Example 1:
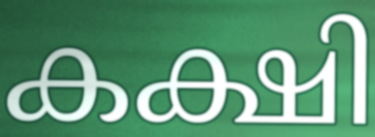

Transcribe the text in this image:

കക്ഷി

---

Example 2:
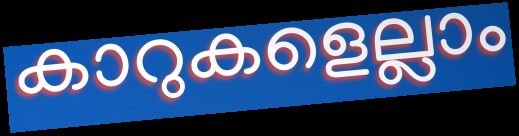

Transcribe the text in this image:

കാറുകളെല്ലാം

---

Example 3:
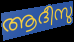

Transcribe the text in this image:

ആദീസു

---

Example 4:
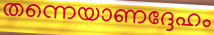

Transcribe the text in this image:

തന്നെയാണദ്ദേഹം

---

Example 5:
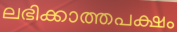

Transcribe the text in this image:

ലഭിക്കാത്തപക്ഷം